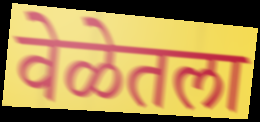
वेळेतला